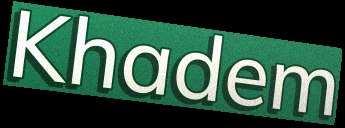
Khadem